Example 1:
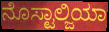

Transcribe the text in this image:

ನೊಸ್ಟಾಲ್ಜಿಯಾ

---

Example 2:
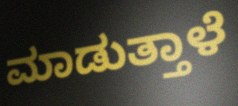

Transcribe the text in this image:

ಮಾಡುತ್ತಾಳೆ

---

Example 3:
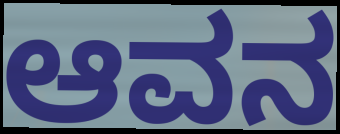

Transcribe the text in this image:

ಆವನ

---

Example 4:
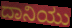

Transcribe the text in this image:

ದಾನಿಯು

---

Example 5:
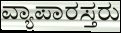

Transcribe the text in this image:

ವ್ಯಾಪಾರಸ್ತರು